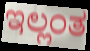
ಇಲ್ಲಂತ